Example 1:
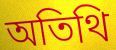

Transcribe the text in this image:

অতিথি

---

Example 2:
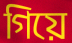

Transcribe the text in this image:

গিয়ে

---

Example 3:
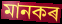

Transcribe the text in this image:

মানকৰ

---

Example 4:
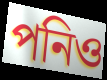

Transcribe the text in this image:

পনিও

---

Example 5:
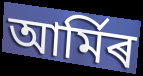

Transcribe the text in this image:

আৰ্মিৰ